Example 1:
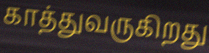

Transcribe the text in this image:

காத்துவருகிறது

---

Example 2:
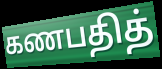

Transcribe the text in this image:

கணபதித்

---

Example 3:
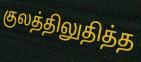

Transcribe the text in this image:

குலத்திலுதித்த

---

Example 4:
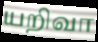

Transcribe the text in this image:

யறிவா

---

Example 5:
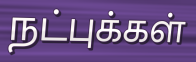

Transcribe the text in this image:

நட்புக்கள்